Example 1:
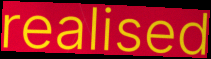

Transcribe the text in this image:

realised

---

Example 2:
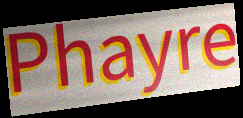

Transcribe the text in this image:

Phayre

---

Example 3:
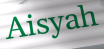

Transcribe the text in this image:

Aisyah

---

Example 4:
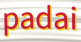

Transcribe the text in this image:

padai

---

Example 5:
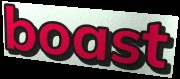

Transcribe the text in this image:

boast